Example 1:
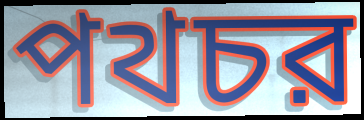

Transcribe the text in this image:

পথচর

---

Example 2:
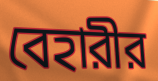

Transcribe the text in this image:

বেহারীর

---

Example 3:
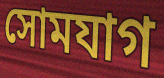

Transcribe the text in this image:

সোমযাগ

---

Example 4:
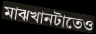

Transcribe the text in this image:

মাঝখানটাতেও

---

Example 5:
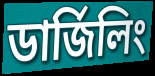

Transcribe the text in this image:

ডার্জিলিং